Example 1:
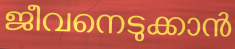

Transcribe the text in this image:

ജീവനെടുക്കാൻ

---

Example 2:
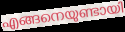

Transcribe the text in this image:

എങ്ങനെയുണ്ടായി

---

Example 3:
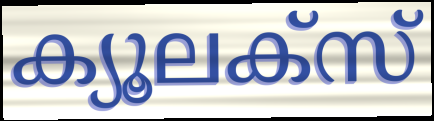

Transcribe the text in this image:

ക്യൂലക്സ്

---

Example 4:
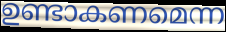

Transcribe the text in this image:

ഉണ്ടാകണമെന്ന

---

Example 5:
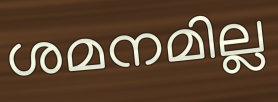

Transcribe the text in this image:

ശമനമില്ല